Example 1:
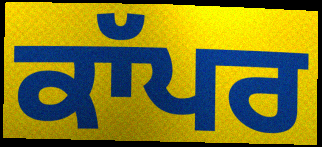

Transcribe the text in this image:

ਕਾੱਪਰ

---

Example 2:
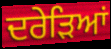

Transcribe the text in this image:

ਦਰੇੜਿਆਂ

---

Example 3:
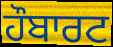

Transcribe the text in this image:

ਹੌਬਾਰਟ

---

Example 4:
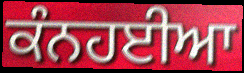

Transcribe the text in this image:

ਕੰਨਹਈਆ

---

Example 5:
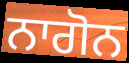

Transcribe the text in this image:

ਨਾਗੋਨ